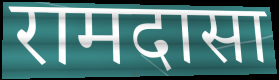
रामदासा